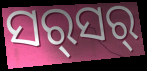
ସର୍‍ସର୍